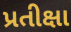
પ્રતીક્ષા